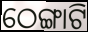
ଠେଙ୍ଗାଟି